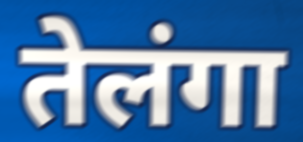
तेलंगा